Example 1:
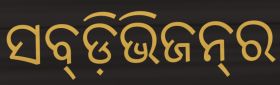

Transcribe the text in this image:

ସବ୍‍ଡ଼ିଭିଜନ୍‍ର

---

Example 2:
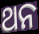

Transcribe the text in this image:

ଥନ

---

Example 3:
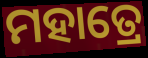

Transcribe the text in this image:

ମହାତ୍ରେ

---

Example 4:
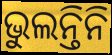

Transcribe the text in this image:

ଭୁଲନ୍ତିନି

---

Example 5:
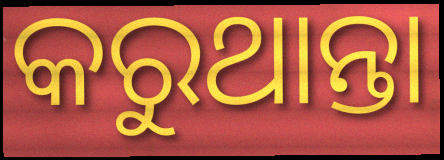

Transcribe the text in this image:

କରୁଥାନ୍ତା